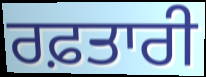
ਰਫ਼ਤਾਰੀ